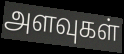
அளவுகள்